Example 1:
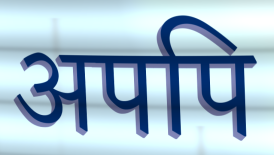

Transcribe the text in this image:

अपपि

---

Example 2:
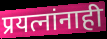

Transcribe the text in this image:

प्रयत्नांनाही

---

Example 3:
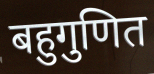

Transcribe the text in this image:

बहुगुणित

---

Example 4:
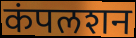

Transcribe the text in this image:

कंपलशन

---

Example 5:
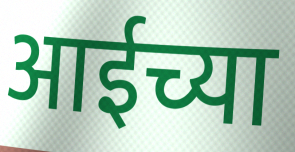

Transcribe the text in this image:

आईच्या